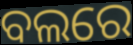
ବଲରେ